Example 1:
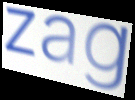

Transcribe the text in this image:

zag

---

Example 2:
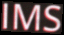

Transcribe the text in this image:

IMS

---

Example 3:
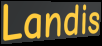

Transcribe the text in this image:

Landis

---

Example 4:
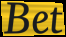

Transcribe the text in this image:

Bet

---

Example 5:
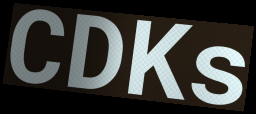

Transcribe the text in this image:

CDKs